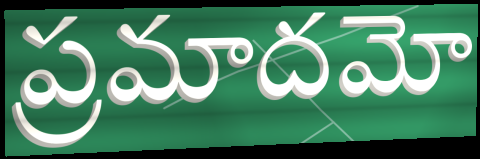
ప్రమాదమో